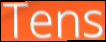
Tens